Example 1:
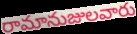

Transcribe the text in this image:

రామానుజులవారు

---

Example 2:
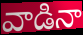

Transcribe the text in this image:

వాడినా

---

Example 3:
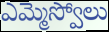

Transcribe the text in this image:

ఎమ్మెస్వోలు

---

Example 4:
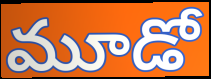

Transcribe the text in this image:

మూడో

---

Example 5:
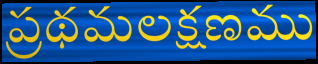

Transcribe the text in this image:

ప్రథమలక్షణము